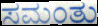
ಸಮಂತು